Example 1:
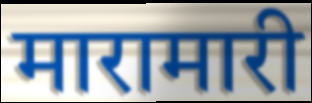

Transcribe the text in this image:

मारामारी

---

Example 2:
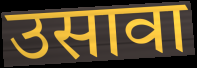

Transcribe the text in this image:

उसावा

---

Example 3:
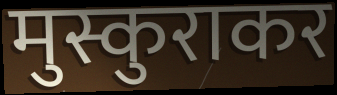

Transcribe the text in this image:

मुस्कुराकर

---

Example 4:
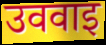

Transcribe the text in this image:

उववाइ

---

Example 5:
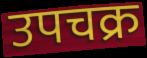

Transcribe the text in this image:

उपचक्र